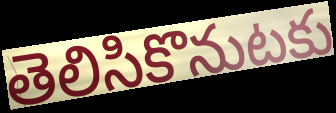
తెలిసికొనుటకు